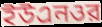
ইউএনওর